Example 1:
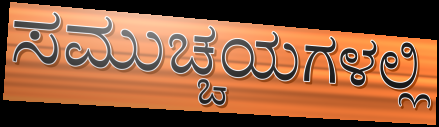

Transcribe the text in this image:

ಸಮುಚ್ಚಯಗಳಲ್ಲಿ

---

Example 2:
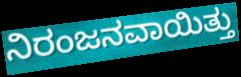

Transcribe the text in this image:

ನಿರಂಜನವಾಯಿತ್ತು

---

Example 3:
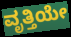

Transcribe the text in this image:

ವೃತ್ತಿಯೇ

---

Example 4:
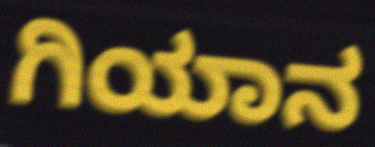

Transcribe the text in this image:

ಗಿಯಾನ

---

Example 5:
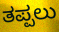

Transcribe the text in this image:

ತಪ್ಪಲು